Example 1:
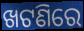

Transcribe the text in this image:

ଖଟଣିରେ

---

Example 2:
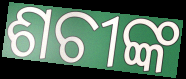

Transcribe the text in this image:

ଶଚୀଙ୍କ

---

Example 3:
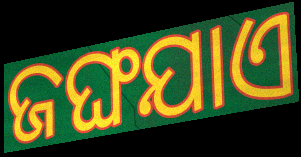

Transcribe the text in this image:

ଜଙ୍ଘଯାଏ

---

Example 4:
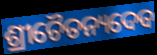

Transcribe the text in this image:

ଶ୍ରୀଚୈତନ୍ୟଦେବ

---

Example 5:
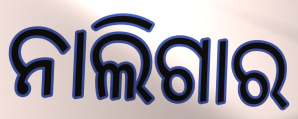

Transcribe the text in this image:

ନାଲିଗାର